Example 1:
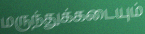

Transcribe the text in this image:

மருந்துக்கடையும்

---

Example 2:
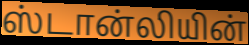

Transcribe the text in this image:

ஸ்டான்லியின்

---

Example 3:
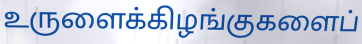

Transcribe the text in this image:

உருளைக்கிழங்குகளைப்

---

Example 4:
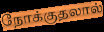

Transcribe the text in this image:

நோக்குதலால்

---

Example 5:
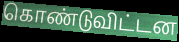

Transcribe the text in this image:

கொண்டுவிட்டன